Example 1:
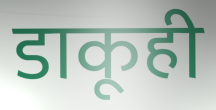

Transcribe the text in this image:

डाकूही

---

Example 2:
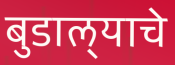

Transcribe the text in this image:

बुडाल्याचे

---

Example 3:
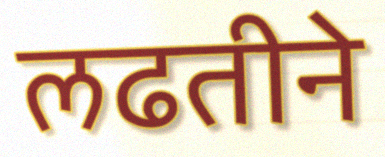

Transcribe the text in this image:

लढतीने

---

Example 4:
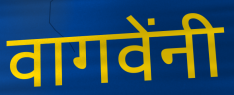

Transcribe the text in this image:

वागवेंनी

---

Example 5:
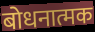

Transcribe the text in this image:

बोधनात्मक